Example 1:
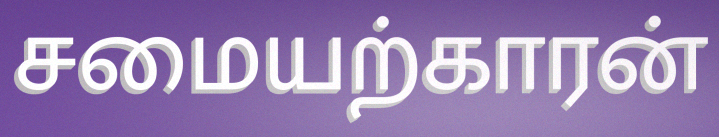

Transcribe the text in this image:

சமையற்காரன்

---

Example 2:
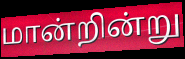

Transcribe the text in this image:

மான்றின்று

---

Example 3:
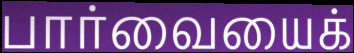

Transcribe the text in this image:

பார்வையைக்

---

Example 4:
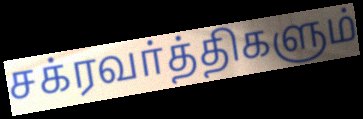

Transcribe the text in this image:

சக்ரவர்த்திகளும்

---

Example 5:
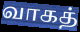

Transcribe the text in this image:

வாகத்